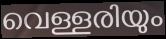
വെള്ളരിയും